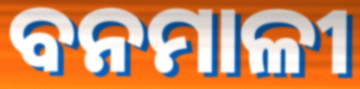
ବନମାଳୀ